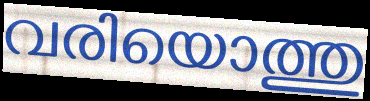
വരിയൊത്തു